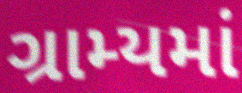
ગ્રામ્યમાં